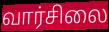
வார்சிலை